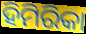
ହିମିରିକା